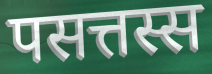
पसत्तस्स